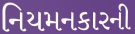
નિયમનકારની